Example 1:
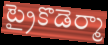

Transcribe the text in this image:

ట్రైకొడెర్మా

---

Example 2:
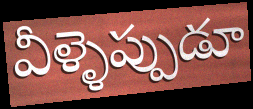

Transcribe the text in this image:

వీళ్ళెప్పుడూ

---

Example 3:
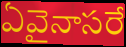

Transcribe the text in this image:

ఏవైనాసరే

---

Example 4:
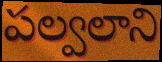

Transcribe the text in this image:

పల్వలాని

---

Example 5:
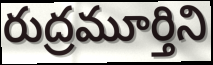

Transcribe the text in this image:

రుద్రమూర్తిని